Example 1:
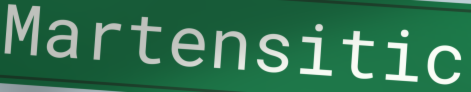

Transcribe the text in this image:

Martensitic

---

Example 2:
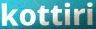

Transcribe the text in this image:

kottiri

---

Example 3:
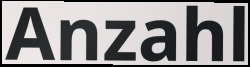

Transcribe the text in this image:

Anzahl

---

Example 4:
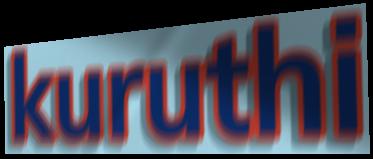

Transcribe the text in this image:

kuruthi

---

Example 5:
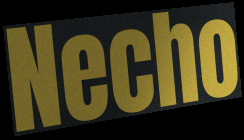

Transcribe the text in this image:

Necho